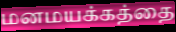
மனமயக்கத்தை